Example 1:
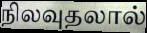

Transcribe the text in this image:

நிலவுதலால்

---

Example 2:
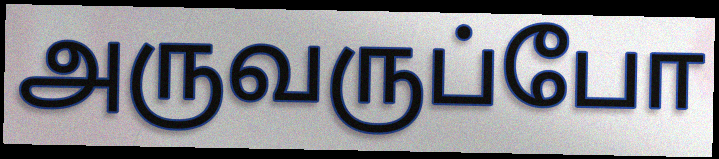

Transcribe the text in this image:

அருவருப்போ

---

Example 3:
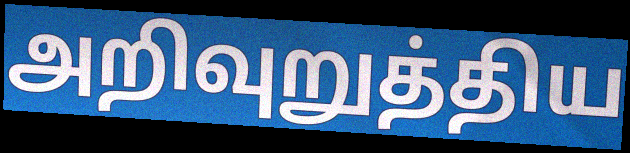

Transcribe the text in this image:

அறிவுறுத்திய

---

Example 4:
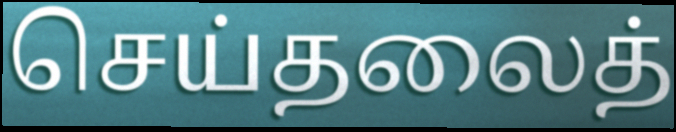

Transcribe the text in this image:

செய்தலைத்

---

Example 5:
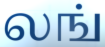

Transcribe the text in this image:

லங்